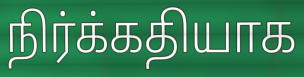
நிர்க்கதியாக